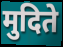
मुदिते